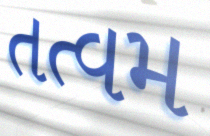
તત્વમ